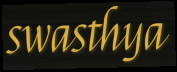
swasthya